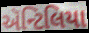
ઍન્ટિલિયા